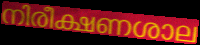
നിരീക്ഷണശാല